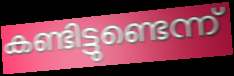
കണ്ടിട്ടുണ്ടെന്ന്